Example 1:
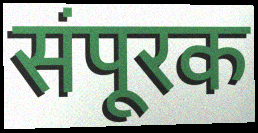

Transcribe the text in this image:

संपूरक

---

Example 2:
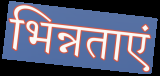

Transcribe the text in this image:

भिन्नताएं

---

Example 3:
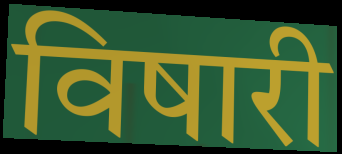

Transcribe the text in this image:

विषारी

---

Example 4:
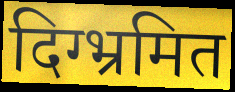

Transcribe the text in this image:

दिग्भ्रमित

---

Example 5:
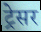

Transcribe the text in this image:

ट्रेसर